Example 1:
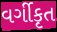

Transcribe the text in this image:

વર્ગીકૃત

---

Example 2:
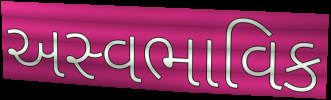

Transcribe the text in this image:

અસ્વભાવિક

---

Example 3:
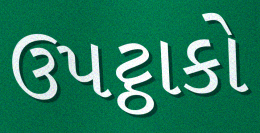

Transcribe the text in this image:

ઉપટ્ઠાકો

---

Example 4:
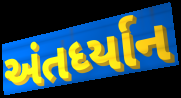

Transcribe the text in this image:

અંતર્ધ્યાન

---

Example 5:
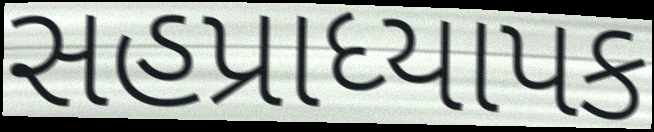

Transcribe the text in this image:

સહપ્રાધ્યાપક